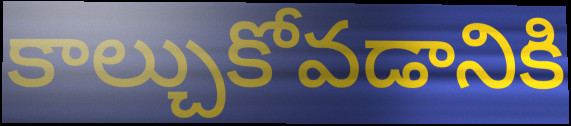
కాల్చుకోవడానికి